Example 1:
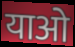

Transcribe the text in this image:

याओ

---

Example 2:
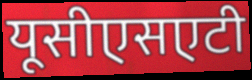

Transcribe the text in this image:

यूसीएसएटी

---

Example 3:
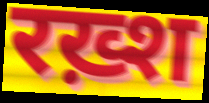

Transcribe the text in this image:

रख़्श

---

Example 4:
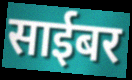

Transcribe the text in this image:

साईबर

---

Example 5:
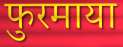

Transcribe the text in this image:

फुरमाया